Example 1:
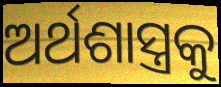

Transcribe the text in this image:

ଅର୍ଥଶାସ୍ତ୍ରକୁ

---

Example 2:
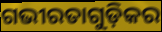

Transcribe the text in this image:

ଗଭୀରତାଗୁଡ଼ିକର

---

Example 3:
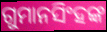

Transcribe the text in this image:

ଗୁମାନସିଂହଙ୍କ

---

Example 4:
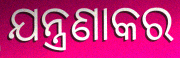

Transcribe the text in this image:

ଯନ୍ତ୍ରଣାକର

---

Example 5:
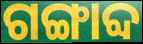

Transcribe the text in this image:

ଗଙ୍ଗାବ୍ଦ